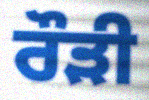
ਰੌੜੀ